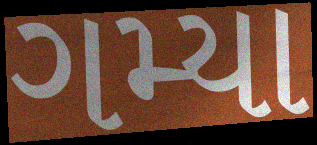
ગમ્યા